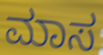
ಮಾಸ